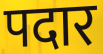
पदार